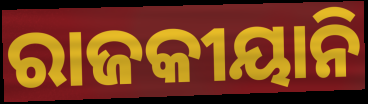
ରାଜକୀୟାନି